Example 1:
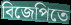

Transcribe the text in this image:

বিজেপিতে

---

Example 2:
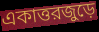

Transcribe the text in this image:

একাত্তরজুড়ে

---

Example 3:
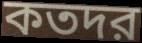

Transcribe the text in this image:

কতদর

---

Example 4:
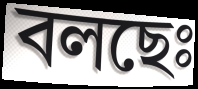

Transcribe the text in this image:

বলছেঃ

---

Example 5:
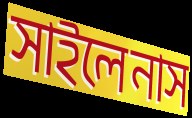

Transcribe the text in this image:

সাইলেনাস